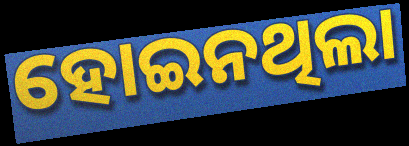
ହୋଇନଥିଲା